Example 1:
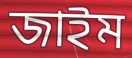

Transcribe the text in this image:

জাইম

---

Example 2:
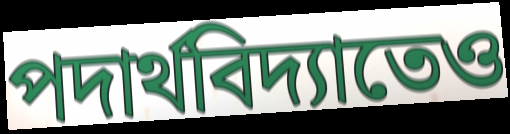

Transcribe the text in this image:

পদার্থবিদ্যাতেও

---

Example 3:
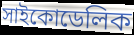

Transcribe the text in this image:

সাইকোডেলিক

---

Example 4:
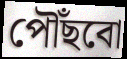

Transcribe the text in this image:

পৌঁছবো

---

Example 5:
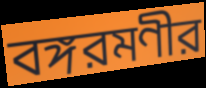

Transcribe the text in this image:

বঙ্গরমণীর